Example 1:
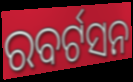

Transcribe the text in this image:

ରବର୍ଟସନ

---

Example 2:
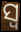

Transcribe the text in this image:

ସ୍ୱ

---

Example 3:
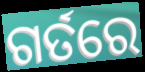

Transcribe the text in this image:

ଗର୍ତରେ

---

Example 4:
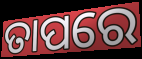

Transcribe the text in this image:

ତାପରେ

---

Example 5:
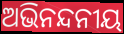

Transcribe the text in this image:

ଅଭିନନ୍ଦନୀୟ